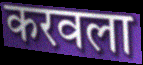
करवला